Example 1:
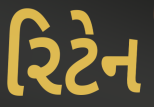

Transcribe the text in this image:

રિટેન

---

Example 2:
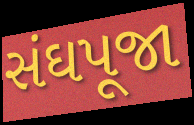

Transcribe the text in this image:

સંઘપૂજા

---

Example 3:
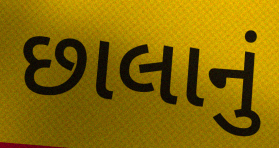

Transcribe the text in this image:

છાલાનું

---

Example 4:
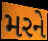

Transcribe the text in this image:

મરને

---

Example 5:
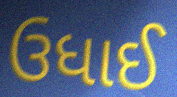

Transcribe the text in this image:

ઉધાઈ